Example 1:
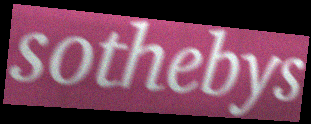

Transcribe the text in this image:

sothebys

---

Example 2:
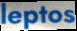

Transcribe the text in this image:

leptos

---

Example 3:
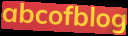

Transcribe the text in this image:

abcofblog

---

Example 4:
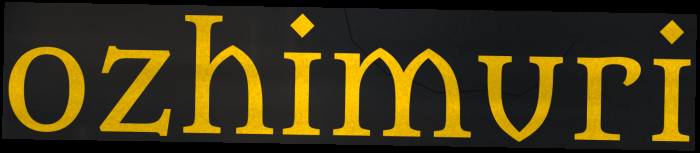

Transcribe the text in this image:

ozhimuri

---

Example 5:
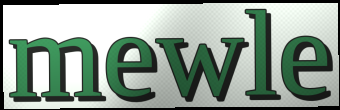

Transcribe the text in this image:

mewle